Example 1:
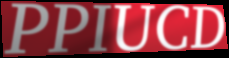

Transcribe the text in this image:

PPIUCD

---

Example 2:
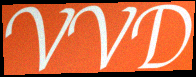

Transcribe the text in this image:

VVD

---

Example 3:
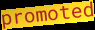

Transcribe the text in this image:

promoted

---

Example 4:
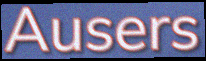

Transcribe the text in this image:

Ausers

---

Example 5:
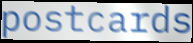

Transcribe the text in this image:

postcards